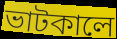
ভাটকালে